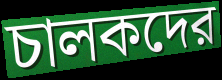
চালকদের